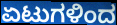
ಏಟುಗಳಿಂದ